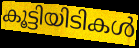
കൂട്ടിയിടികൾ